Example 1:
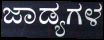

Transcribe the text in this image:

ಜಾಡ್ಯಗಳ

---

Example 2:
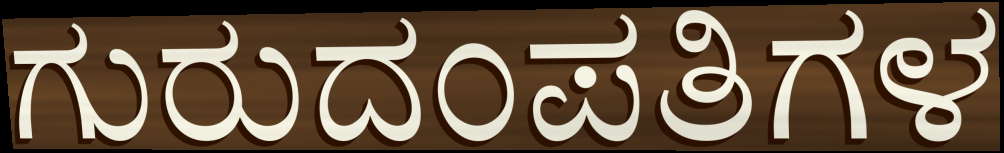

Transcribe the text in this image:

ಗುರುದಂಪತಿಗಳ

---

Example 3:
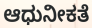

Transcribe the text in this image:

ಆಧುನೀಕತೆ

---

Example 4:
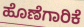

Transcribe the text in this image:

ಹೊಣೆಗಾರಿಕೆ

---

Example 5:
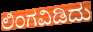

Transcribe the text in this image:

ಲಿಂಗವಿಡಿದು